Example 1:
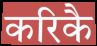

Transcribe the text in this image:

करिकै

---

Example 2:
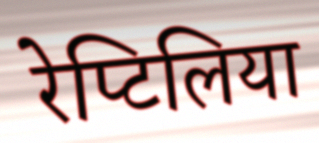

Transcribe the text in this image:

रेप्टिलिया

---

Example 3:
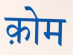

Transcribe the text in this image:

क़ोम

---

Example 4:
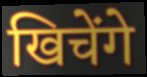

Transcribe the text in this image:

खिचेंगे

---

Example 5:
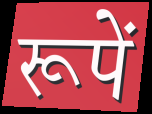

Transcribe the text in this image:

रूपें